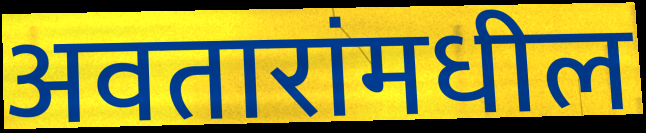
अवतारांमधील